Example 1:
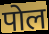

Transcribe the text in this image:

पोल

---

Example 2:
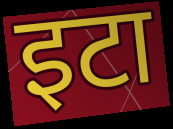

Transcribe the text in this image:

इटा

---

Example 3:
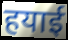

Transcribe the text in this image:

हयाई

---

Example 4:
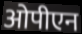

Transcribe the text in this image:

ओपीएन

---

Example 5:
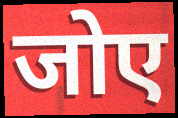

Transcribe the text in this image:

जोए